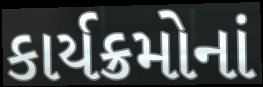
કાર્યક્રમોનાં